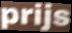
prijs